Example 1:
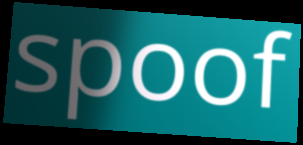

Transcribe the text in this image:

spoof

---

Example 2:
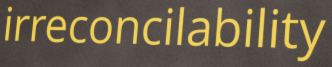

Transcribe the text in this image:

irreconcilability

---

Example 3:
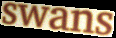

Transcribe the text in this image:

swans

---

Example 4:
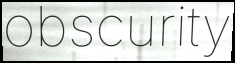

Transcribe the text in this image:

obscurity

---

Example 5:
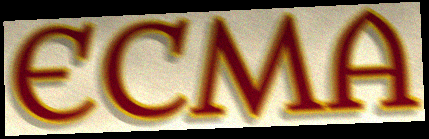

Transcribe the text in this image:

ECMA